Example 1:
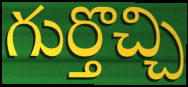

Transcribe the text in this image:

గుర్తొచ్చి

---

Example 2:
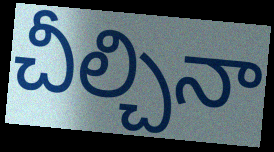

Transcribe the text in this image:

చీల్చినా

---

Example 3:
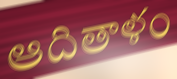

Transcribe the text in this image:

ఆదితాళం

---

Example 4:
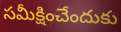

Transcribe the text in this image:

సమీక్షించేందుకు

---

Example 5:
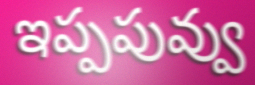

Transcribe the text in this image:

ఇప్పపువ్వు